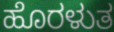
ಹೊರಳುತ